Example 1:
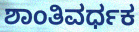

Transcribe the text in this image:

ಶಾಂತಿವರ್ಧಕ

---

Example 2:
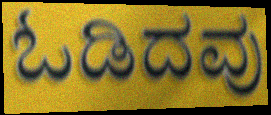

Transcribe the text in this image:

ಓಡಿದವು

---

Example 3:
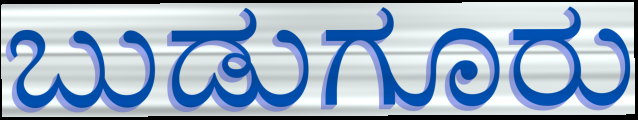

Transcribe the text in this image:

ಬುಡುಗೂರು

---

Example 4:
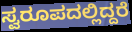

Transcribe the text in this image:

ಸ್ವರೂಪದಲ್ಲಿದ್ದರೆ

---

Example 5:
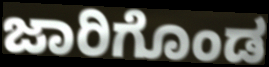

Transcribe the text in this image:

ಜಾರಿಗೊಂಡ